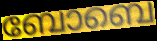
ബോബെ